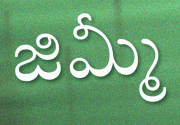
జిమ్మీ